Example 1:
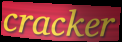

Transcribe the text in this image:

cracker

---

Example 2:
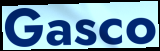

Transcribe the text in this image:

Gasco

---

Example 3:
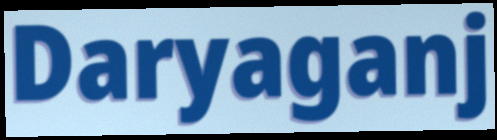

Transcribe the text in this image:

Daryaganj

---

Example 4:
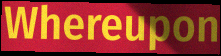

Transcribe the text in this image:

Whereupon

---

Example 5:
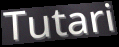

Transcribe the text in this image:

Tutari